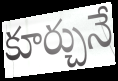
కూర్చునే